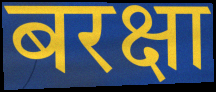
बरक्षा